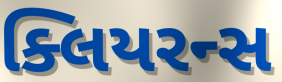
ક્લિયરન્સ